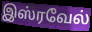
இஸ்ரவேல்